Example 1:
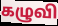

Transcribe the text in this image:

கழுவி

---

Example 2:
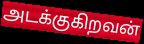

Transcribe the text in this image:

அடக்குகிறவன்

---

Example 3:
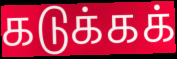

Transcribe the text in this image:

கடுக்கக்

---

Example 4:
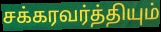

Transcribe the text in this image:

சக்கரவர்த்தியும்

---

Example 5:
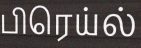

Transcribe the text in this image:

பிரெய்ல்